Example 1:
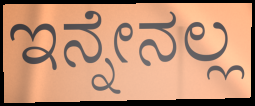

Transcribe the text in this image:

ಇನ್ನೇನಲ್ಲ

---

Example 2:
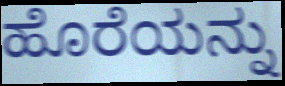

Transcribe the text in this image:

ಹೊರೆಯನ್ನು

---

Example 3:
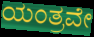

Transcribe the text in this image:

ಯಂತ್ರವೇ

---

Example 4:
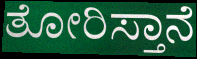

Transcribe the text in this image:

ತೋರಿಸ್ತಾನೆ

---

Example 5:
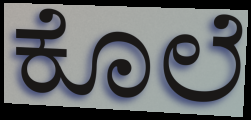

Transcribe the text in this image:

ಕೊಲೆ